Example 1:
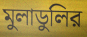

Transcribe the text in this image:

মুলাডুলির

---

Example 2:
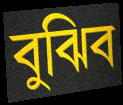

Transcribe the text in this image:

বুঝিব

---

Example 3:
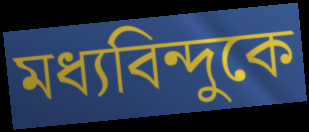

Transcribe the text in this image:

মধ্যবিন্দুকে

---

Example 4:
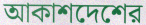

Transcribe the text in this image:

আকাশদেশের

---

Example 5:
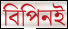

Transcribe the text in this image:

বিপিনই